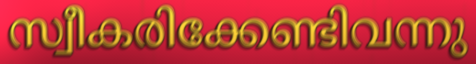
സ്വീകരിക്കേണ്ടിവന്നു